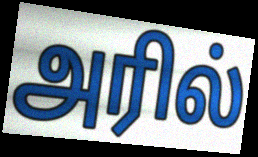
அரில்